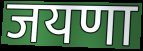
जयणा